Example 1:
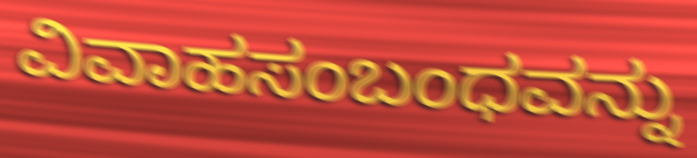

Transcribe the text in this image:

ವಿವಾಹಸಂಬಂಧವನ್ನು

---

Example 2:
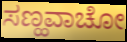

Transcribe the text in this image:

ಸಣ್ಹವಾಚೋ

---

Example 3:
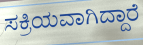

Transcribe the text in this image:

ಸಕ್ರಿಯವಾಗಿದ್ದಾರೆ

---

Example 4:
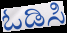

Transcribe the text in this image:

ಓಡಿಸಿ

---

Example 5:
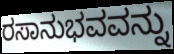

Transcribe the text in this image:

ರಸಾನುಭವವನ್ನು